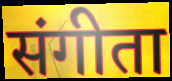
संगीता